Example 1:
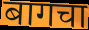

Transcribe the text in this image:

बागचा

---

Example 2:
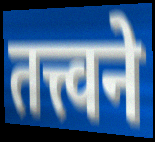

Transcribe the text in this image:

तत्त्वने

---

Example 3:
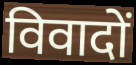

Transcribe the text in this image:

विवादों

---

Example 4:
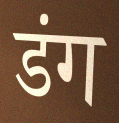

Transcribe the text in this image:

डंग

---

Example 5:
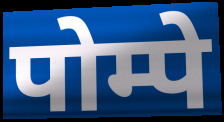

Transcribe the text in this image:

पोम्पे